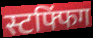
स्टफ्फिंग